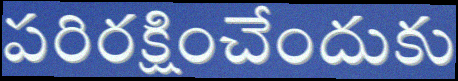
పరిరక్షించేందుకు